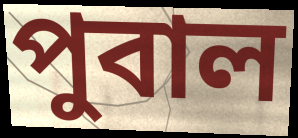
পুবাল